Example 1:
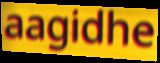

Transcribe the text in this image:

aagidhe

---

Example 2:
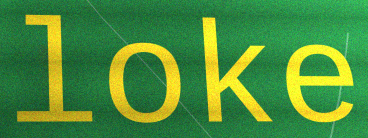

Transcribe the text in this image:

loke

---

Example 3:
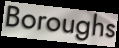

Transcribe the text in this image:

Boroughs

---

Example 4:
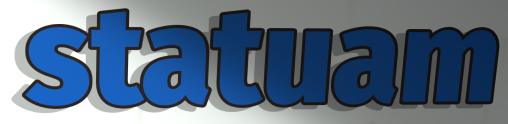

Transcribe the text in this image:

statuam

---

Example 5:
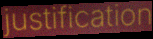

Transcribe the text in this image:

justification